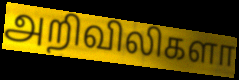
அறிவிலிகளா